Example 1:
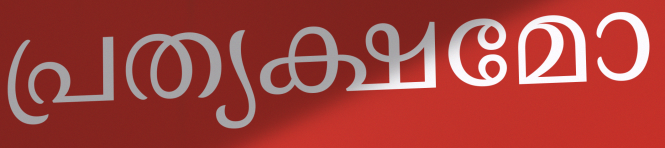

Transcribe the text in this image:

പ്രത്യക്ഷമോ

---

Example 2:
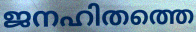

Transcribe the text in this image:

ജനഹിതത്തെ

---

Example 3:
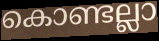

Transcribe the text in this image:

കൊണ്ടല്ലാ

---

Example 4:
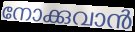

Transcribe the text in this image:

നോക്കുവാൻ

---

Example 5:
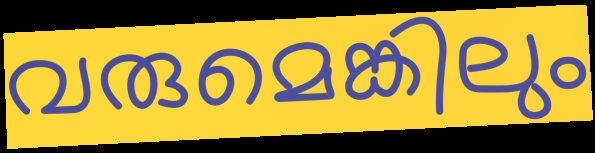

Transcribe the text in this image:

വരുമെങ്കിലും